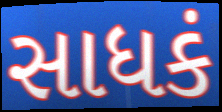
સાધકં